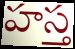
హస్త